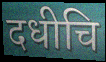
दधीचि